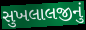
સુખલાલજીનું